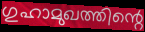
ഗുഹാമുഖത്തിന്റെ